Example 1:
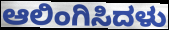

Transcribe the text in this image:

ಆಲಿಂಗಿಸಿದಳು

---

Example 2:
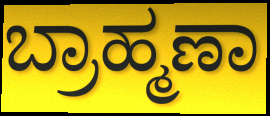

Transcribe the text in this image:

ಬ್ರಾಹ್ಮಣಾ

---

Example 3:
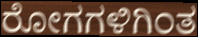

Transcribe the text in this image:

ರೋಗಗಳಿಗಿಂತ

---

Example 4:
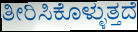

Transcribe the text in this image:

ತೀರಿಸಿಕೊಳ್ಳುತ್ತದೆ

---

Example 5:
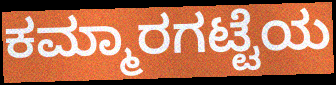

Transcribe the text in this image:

ಕಮ್ಮಾರಗಟ್ಟೆಯ